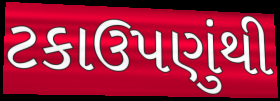
ટકાઉપણુંથી